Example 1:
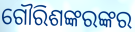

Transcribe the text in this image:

ଗୌରିଶଙ୍କରଙ୍କର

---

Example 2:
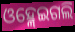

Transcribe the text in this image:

ଓହ୍ଲେଇଗଲି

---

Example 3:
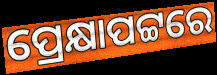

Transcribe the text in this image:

ପ୍ରେକ୍ଷାପଟ୍ଟରେ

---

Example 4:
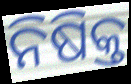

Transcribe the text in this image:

ନିଷିକ୍ତ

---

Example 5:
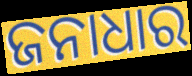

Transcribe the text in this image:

ଜନାଧାର